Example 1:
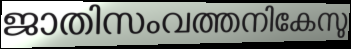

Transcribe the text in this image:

ജാതിസംവത്തനികേസു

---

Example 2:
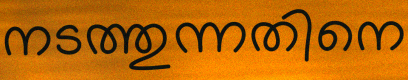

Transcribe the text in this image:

നടത്തുന്നതിനെ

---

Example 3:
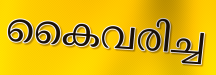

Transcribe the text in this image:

കൈവരിച്ച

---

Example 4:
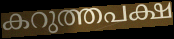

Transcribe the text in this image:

കറുത്തപക്ഷ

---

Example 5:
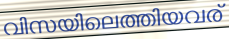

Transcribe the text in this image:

വിസയിലെത്തിയവര്